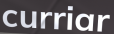
curriar